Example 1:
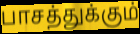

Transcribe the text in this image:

பாசத்துக்கும்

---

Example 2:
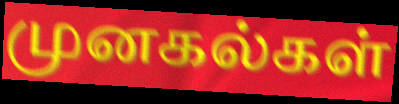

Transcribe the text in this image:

முனகல்கள்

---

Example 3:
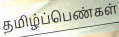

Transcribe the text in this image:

தமிழ்ப்பெண்கள்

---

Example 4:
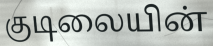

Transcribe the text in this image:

குடிலையின்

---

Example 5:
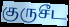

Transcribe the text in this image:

குருசீட